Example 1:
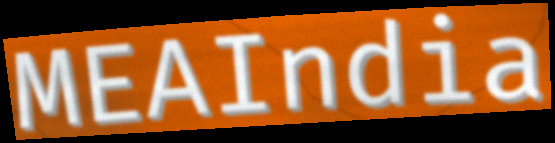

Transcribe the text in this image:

MEAIndia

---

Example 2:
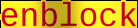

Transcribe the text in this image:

enblock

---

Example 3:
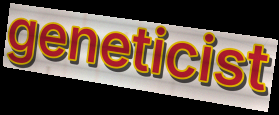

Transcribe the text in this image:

geneticist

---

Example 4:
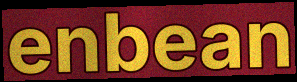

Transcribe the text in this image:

enbean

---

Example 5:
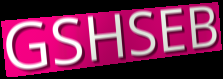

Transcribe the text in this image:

GSHSEB